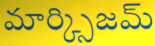
మార్క్సిజమ్